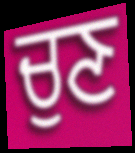
ਚੁਣ